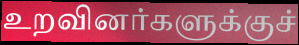
உறவினர்களுக்குச்